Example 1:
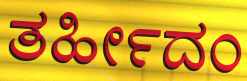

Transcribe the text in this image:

ತರ್ಹೀದಂ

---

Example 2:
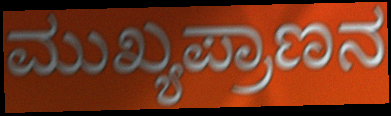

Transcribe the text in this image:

ಮುಖ್ಯಪ್ರಾಣನ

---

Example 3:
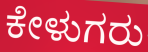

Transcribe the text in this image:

ಕೇಳುಗರು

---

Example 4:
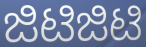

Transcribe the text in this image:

ಜಿಟಿಜಿಟಿ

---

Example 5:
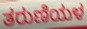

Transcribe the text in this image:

ತರುಣಿಯಳ